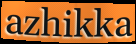
azhikka